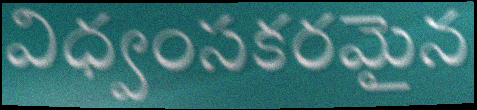
విధ్వంసకరమైన